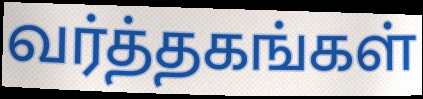
வர்த்தகங்கள்